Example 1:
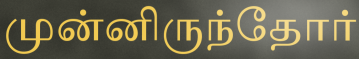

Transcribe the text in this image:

முன்னிருந்தோர்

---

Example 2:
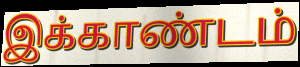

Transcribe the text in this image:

இக்காண்டம்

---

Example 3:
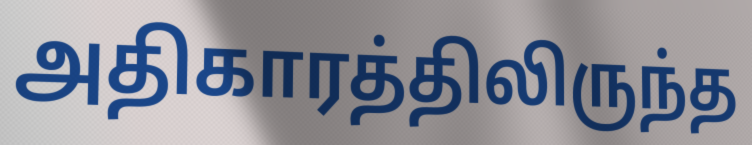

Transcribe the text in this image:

அதிகாரத்திலிருந்த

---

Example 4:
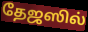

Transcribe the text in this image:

தேஜஸில்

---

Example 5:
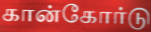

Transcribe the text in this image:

கான்கோர்டு